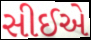
સીઈએ